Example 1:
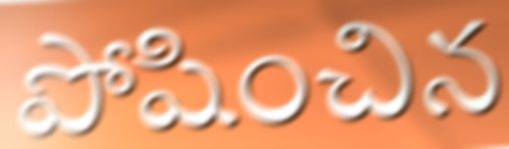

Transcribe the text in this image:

పోషించిన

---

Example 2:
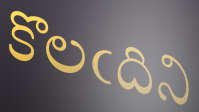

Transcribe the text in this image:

కొలఁదిని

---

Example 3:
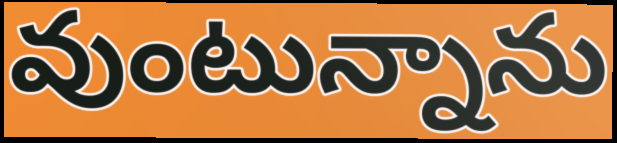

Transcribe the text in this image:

వుంటున్నాను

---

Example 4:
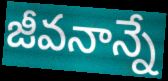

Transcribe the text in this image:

జీవనాన్నే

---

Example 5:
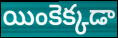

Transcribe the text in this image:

యింకెక్కడా